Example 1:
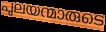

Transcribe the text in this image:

പുലയന്മാരുടെ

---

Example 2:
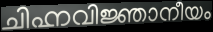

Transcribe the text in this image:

ചിഹ്നവിജ്ഞാനീയം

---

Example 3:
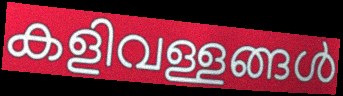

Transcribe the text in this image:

കളിവള്ളങ്ങൾ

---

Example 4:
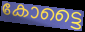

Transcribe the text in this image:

കോട്ടൈ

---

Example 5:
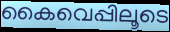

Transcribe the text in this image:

കൈവെപ്പിലൂടെ